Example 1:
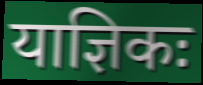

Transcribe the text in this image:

याज्ञिकः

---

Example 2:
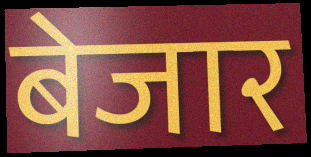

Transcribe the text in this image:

बेजार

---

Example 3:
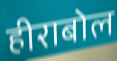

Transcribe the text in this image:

हीराबोल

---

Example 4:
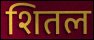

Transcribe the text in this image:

शितल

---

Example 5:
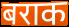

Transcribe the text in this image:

बराक